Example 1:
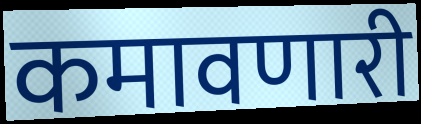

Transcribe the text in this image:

कमावणारी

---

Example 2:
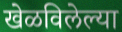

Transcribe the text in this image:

खेळविलेल्या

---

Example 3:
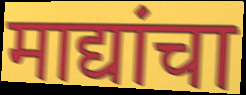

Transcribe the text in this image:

माद्यांचा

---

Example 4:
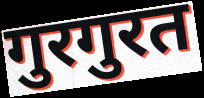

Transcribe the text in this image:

गुरगुरत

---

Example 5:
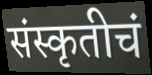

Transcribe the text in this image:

संस्कृतीचं